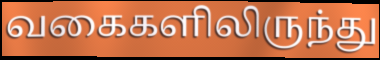
வகைகளிலிருந்து